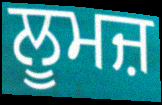
ਲੂਮਜ਼